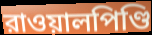
রাওয়ালপিণ্ডি